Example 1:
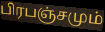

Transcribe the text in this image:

பிரபஞ்சமும்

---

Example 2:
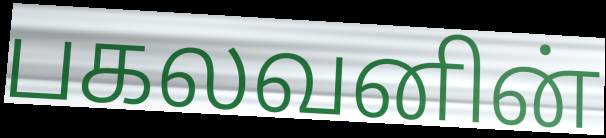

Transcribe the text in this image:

பகலவனின்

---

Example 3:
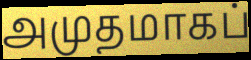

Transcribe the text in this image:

அமுதமாகப்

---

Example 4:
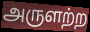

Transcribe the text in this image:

அருளற்ற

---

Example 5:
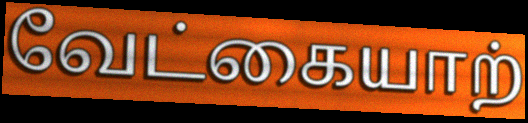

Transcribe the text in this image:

வேட்கையாற்